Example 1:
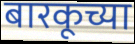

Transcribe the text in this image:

बारकूच्या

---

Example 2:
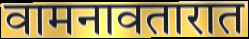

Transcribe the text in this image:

वामनावतारात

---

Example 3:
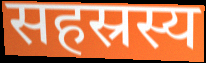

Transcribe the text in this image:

सहस्रस्य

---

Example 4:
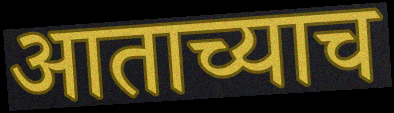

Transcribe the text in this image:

आताच्याच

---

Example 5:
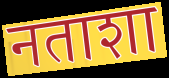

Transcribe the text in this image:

नताशा